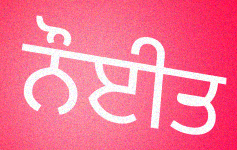
ਨੌਈਤ